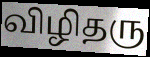
விழிதரு